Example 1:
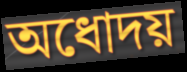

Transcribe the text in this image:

অধোদয়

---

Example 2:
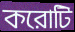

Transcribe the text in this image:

করোটি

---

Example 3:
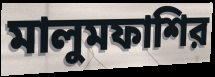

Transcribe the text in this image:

মালুমফাশির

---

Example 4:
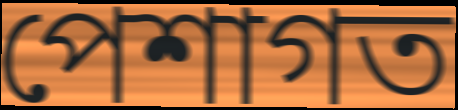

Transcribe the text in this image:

পেশাগত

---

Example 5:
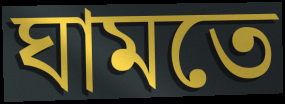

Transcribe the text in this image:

ঘামতে